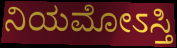
ನಿಯಮೋಽಸ್ತಿ